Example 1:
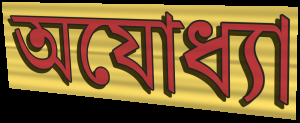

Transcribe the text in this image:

অযোধ্যা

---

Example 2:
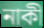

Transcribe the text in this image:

নাকী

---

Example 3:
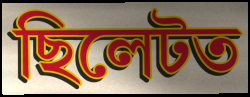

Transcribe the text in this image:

ছিলেটত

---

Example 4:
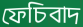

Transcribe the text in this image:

ফেচিবাদ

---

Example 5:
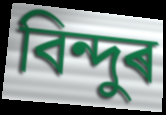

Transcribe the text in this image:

বিন্দুৰ